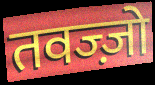
तवज्ज़ो